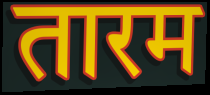
तारम